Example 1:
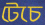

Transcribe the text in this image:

টেচে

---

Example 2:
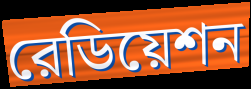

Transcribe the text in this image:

রেডিয়েশন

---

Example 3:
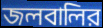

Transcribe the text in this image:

জলবালির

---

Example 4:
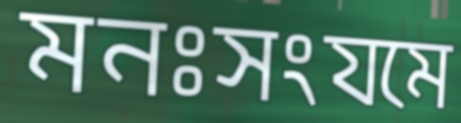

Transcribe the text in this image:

মনঃসংযমে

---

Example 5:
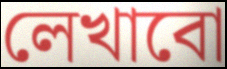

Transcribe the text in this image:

লেখাবো